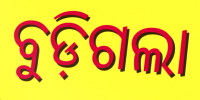
ବୁଡ଼ିଗଲା